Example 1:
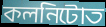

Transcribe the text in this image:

কলনিটোত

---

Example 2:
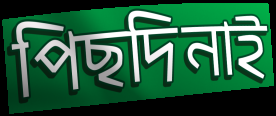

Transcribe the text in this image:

পিছদিনাই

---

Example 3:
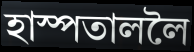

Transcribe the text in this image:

হাস্পতাললৈ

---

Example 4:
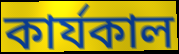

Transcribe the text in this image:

কাৰ্যকাল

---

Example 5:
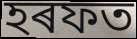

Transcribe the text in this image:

হৰফত